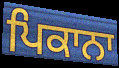
ਪਿਕਾਨਾ